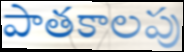
పాతకాలపు